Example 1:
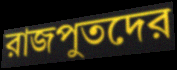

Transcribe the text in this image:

রাজপুতদের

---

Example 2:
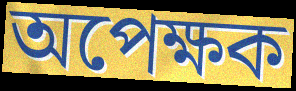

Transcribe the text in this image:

অপেক্ষক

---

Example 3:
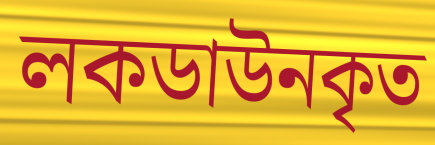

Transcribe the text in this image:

লকডাউনকৃত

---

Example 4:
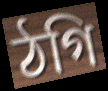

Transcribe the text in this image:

ঠগি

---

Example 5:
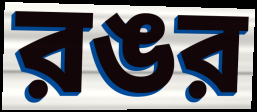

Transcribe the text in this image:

রঙর